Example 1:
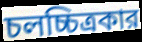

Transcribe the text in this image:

চলচ্চিত্রকার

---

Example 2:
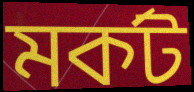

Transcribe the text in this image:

মর্কট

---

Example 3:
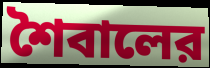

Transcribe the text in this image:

শৈবালের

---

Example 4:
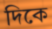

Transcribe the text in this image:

দিকে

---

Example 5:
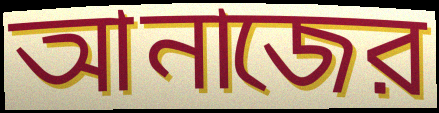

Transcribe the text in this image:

আনাজের